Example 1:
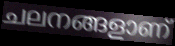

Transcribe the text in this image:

ചലനങ്ങളാണ്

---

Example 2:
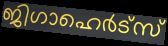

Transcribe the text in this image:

ജിഗാഹെർട്സ്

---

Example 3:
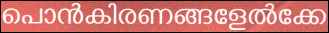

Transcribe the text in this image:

പൊൻകിരണങ്ങളേൽക്കേ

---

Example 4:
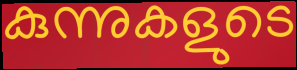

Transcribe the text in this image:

കുന്നുകളുടെ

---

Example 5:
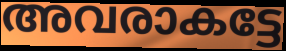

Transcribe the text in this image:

അവരാകട്ടേ